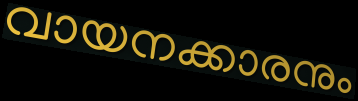
വായനക്കാരനും